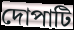
দোপাটি